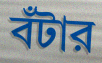
বঁটার